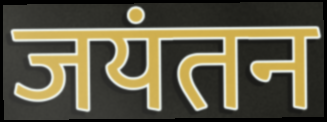
जयंतन